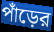
পাঁড়ের